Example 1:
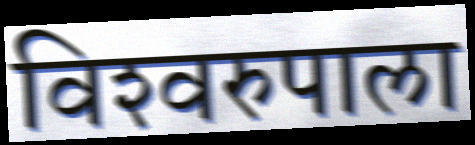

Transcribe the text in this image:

विश्वरुपाला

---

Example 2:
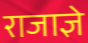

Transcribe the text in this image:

राजाज्ञे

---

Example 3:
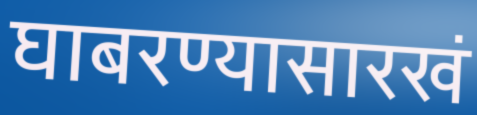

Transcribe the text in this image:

घाबरण्यासारखं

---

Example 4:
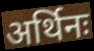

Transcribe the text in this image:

अर्थिनः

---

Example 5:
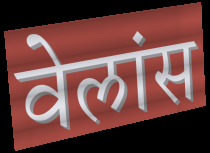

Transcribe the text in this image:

वेलांस